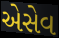
એસેવ